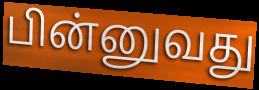
பின்னுவது